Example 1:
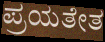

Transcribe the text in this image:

ಪ್ರಯತೇತ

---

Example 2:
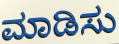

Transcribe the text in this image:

ಮಾಡಿಸು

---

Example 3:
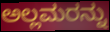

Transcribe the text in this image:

ಅಲ್ಲಮರನ್ನು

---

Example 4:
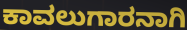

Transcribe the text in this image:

ಕಾವಲುಗಾರನಾಗಿ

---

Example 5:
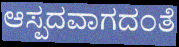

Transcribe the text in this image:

ಆಸ್ಪದವಾಗದಂತೆ